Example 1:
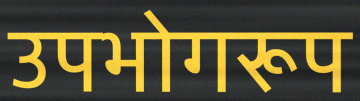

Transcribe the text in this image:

उपभोगरूप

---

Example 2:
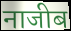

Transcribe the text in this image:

नाजीब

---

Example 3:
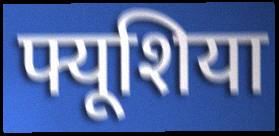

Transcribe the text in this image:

फ्यूशिया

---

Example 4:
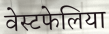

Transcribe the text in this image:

वेस्टफेलिया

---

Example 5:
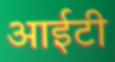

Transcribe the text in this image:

आईटी